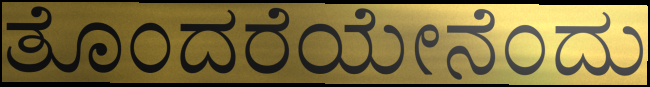
ತೊಂದರೆಯೇನೆಂದು